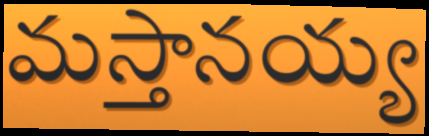
మస్తానయ్య